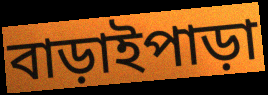
বাড়াইপাড়া